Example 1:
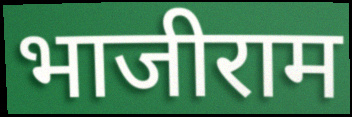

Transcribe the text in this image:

भाजीराम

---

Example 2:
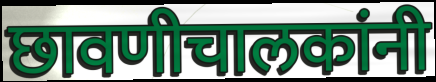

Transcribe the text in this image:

छावणीचालकांनी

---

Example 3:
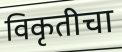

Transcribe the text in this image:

विकृतीचा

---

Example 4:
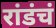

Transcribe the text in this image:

रांडंचं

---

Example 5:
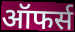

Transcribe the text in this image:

ऑफर्स